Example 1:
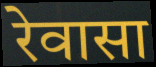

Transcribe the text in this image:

रेवासा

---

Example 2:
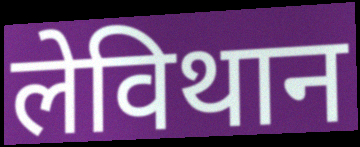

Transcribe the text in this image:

लेविथान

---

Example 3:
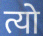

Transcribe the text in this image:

त्यो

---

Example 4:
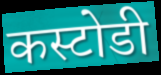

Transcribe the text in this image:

कस्टोडी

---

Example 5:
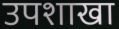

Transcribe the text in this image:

उपशाखा